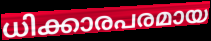
ധിക്കാരപരമായ